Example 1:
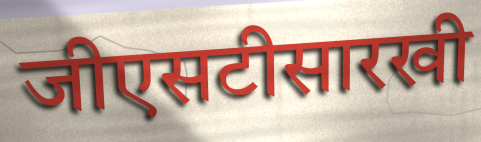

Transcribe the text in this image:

जीएसटीसारखी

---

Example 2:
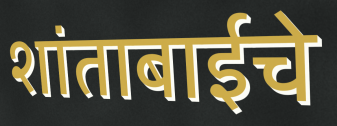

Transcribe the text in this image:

शांताबाईचे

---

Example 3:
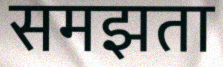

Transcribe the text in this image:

समझता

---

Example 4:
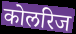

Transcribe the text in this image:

कोलरिज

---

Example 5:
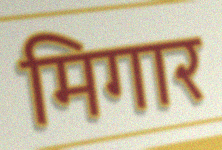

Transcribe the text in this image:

मिगार